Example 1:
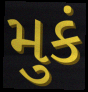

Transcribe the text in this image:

મુકં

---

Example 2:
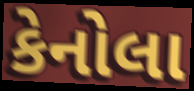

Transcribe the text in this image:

કેનોલા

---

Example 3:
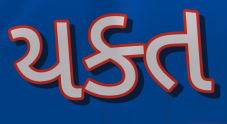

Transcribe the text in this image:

યક્ત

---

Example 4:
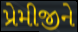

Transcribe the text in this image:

પ્રેમીજીને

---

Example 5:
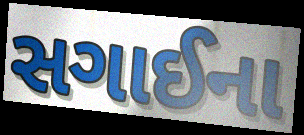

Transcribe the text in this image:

સગાઈના